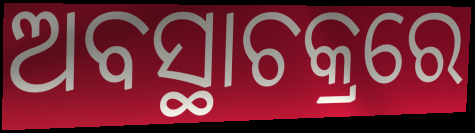
ଅବସ୍ଥାଚକ୍ରରେ